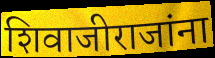
शिवाजीराजांना